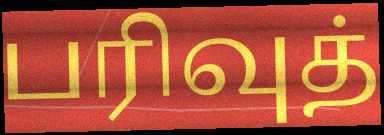
பரிவுத்